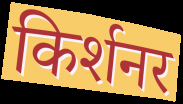
किर्शनर